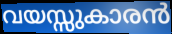
വയസ്സുകാരൻ